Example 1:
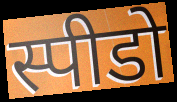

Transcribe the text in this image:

स्पीडो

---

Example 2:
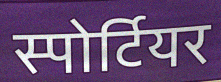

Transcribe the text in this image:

स्पोर्टियर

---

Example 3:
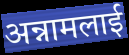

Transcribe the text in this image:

अन्नामलाई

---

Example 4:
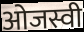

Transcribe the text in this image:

ओजस्वी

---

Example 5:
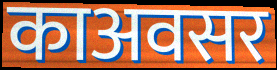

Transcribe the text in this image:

काअवसर